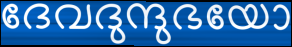
ദേവദുന്ദുഭയോ